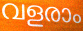
വളരാം